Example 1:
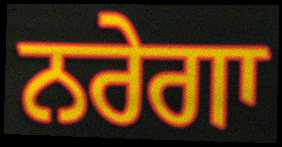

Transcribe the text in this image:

ਨਰੇਗਾ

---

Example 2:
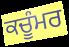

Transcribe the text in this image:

ਕਚੂੰਮਰ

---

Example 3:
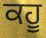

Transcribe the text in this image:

ਕਹੂ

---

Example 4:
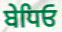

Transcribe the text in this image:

ਬੇਧਿਓ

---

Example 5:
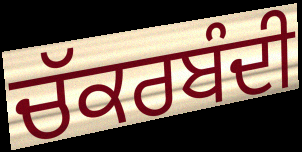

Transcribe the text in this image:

ਚੱਕਰਬੰਦੀ